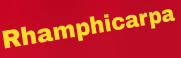
Rhamphicarpa